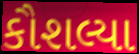
કૌશલ્યા